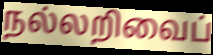
நல்லறிவைப்